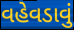
વહેવડાવું